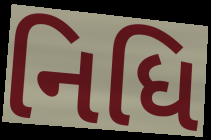
નિધિ